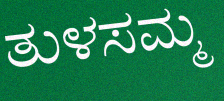
ತುಳಸಮ್ಮ